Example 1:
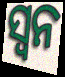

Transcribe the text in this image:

ସ୍ୱନ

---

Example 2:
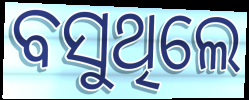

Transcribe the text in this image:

ବସୁଥିଲେ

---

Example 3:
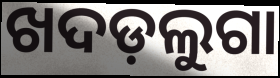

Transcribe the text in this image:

ଖଦଡ଼ଲୁଗା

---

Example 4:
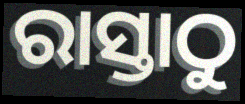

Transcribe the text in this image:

ରାସ୍ତାଠୁ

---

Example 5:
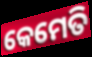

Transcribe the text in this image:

କେମେତି